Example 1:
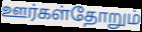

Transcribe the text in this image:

ஊர்கள்தோறும்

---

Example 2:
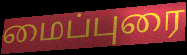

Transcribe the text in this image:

மைப்புரை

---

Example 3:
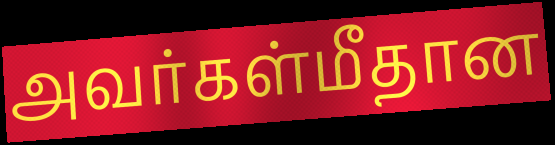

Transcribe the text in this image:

அவர்கள்மீதான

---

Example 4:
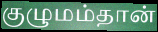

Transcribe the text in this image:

குழுமம்தான்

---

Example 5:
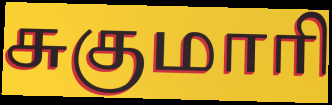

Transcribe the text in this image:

சுகுமாரி